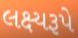
લક્ષ્યરૂપે